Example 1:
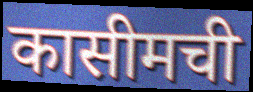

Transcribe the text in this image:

कासीमची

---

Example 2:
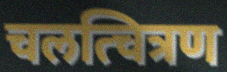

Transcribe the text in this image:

चलत्चित्रण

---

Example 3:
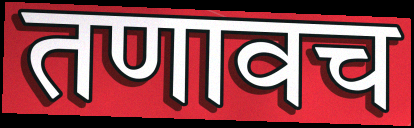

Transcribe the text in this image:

तणावच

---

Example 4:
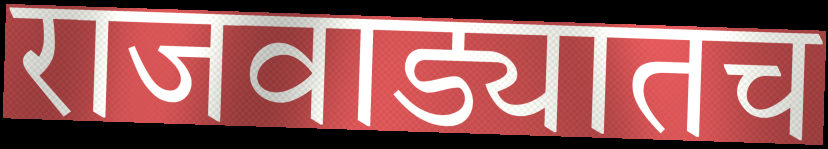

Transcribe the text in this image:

राजवाड्यातच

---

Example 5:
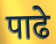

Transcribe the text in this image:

पाढे